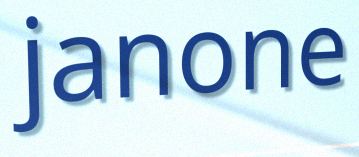
janone